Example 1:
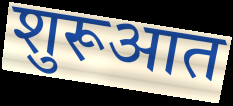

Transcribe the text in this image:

शुरूआत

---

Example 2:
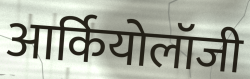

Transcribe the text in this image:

आर्कियोलॉजी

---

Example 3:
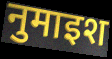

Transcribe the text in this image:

नुमाइश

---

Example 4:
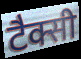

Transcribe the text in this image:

टैक्सी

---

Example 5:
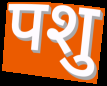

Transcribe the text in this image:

पशु